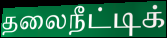
தலைநீட்டிக்